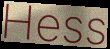
Hess